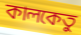
কালকেতু